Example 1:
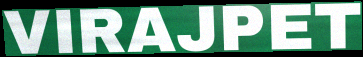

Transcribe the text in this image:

VIRAJPET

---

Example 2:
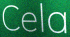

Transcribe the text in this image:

Cela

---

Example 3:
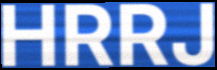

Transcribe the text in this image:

HRRJ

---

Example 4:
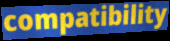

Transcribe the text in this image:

compatibility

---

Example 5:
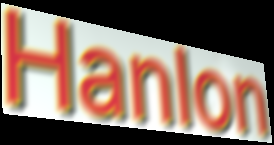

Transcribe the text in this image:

Hanlon